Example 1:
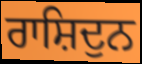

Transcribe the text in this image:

ਰਾਸ਼ਿਦੁਨ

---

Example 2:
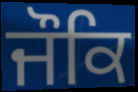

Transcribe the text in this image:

ਜੌਕਿ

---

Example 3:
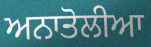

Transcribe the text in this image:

ਅਨਾਤੋਲੀਆ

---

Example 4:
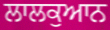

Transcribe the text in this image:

ਲਾਲਕੁਆਨ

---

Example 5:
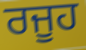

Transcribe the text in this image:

ਰਜੂਹ